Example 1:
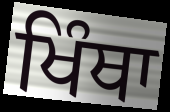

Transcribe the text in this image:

ਖਿੰਥਾ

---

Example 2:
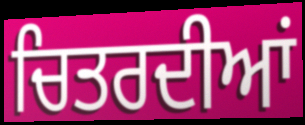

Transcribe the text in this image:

ਚਿਤਰਦੀਆਂ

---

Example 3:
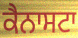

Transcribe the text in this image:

ਕੈਨਾਸਟਾ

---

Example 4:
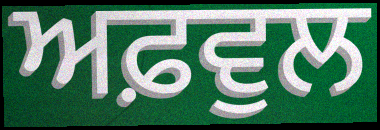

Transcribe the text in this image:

ਅਫ਼ਵੁਲ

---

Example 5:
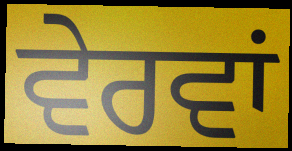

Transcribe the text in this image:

ਵੇਰਵਾਂ